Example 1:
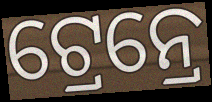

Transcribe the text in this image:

ଟ୍ରେନ୍ରେ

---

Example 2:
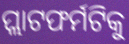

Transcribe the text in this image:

ପ୍ଲାଟଫର୍ମଟିକୁ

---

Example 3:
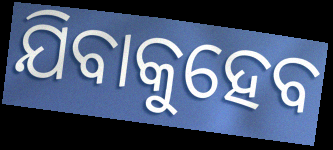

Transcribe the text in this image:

ଯିବାକୁହେବ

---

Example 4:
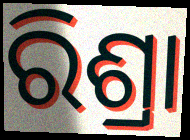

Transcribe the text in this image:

ରିଶ୍ରା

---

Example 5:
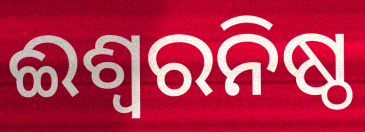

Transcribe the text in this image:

ଈଶ୍ୱରନିଷ୍ଠ